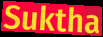
Suktha